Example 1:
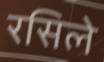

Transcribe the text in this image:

रसिले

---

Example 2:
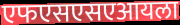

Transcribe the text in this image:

एफएसएसएआयला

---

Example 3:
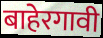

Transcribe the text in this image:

बाहेरगावी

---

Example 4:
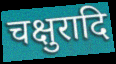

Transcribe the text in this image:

चक्षुरादि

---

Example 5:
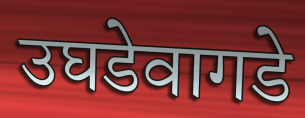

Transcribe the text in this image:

उघडेवागडे